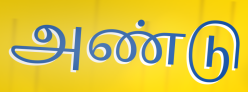
அண்டு